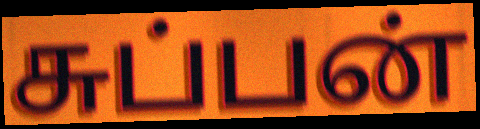
சுப்பன்